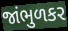
જાંભુળકર